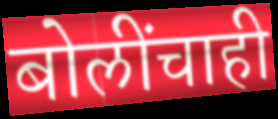
बोलींचाही